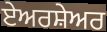
ਏਅਰਸ਼ੇਅਰ